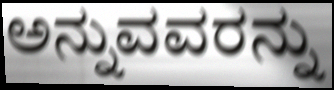
ಅನ್ನುವವರನ್ನು